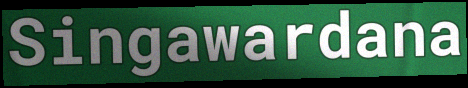
Singawardana